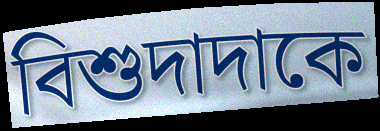
বিশুদাদাকে